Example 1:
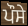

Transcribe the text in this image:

ਪੌਸੇ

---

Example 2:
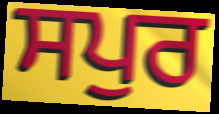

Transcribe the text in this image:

ਸਪੁਰ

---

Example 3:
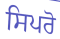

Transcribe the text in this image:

ਸਿਪਰੋ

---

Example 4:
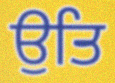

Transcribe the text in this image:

ਉਤਿ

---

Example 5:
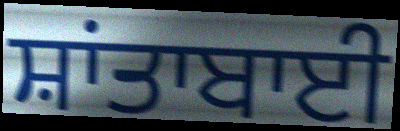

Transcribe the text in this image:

ਸ਼ਾਂਤਾਬਾਈ